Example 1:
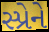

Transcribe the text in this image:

સ્પ્રેને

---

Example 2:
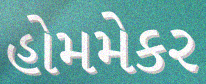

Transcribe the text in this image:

હોમમેકર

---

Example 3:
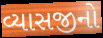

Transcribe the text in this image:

વ્યાસજીનો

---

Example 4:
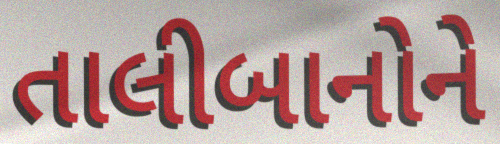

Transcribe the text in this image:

તાલીબાનોને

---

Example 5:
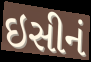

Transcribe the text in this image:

ઇસીનં